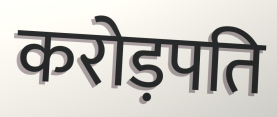
करोड़पति